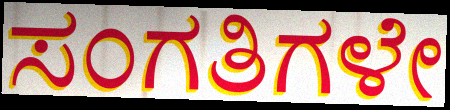
ಸಂಗತಿಗಳೇ